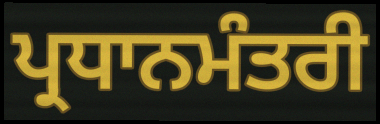
ਪ੍ਰਧਾਨਮੰਤਰੀ